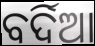
ବର୍ଦିଆ